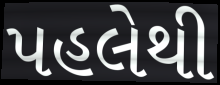
પહલેથી